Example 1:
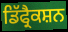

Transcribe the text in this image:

ਡਿੱਫ੍ਰੈਕਸ਼ਨ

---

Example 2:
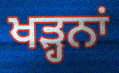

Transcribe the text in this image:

ਖੜ੍ਹਨਾਂ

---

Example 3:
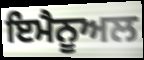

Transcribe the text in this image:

ਇਮੈਨੂਅਲ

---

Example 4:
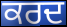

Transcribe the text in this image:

ਕਰਦ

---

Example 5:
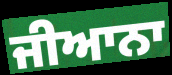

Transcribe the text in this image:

ਜੀਆਨਾ